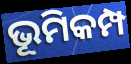
ଭୂମିକମ୍ପ